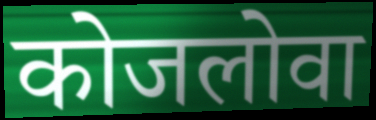
कोजलोवा